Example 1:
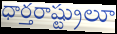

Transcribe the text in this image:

ధార్తరాష్ట్రులూ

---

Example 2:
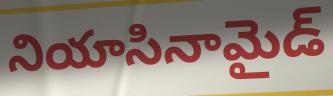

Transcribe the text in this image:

నియాసినామైడ్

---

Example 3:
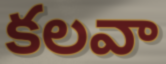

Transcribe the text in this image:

కలవా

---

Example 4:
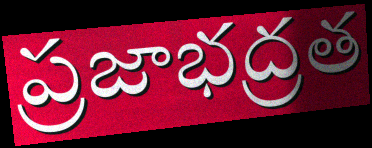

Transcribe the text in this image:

ప్రజాభద్రత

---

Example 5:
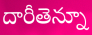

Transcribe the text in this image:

దారీతెన్నూ